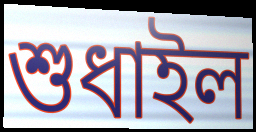
শুধাইল